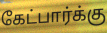
கேட்பார்க்கு